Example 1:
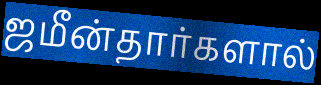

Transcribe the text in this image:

ஜமீன்தார்களால்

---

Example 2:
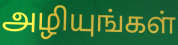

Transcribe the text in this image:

அழியுங்கள்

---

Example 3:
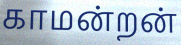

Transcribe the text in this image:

காமன்றன்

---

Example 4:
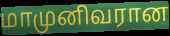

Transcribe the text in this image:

மாமுனிவரான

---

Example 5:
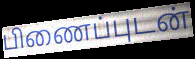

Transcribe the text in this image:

பிணைப்புடன்